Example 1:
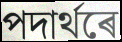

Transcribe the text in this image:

পদাৰ্থৰে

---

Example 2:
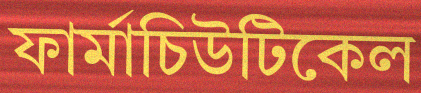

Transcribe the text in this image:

ফাৰ্মাচিউটিকেল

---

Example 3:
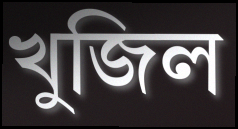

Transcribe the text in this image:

খুজিল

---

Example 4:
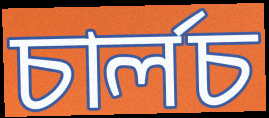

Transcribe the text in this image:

চাৰ্লচ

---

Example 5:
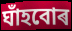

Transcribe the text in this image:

ঘাঁহবোৰ